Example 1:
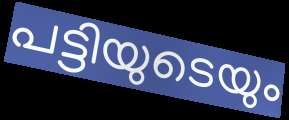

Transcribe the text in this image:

പട്ടിയുടെയും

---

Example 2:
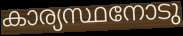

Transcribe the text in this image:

കാര്യസ്ഥനോടു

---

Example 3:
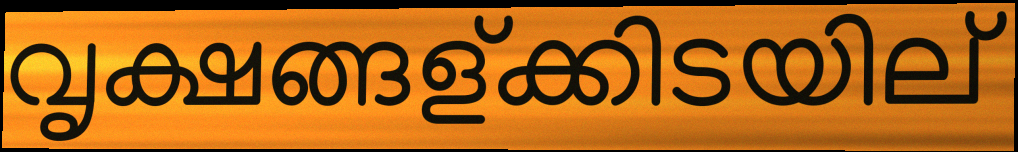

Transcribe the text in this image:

വൃക്ഷങ്ങള്ക്കിടയില്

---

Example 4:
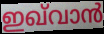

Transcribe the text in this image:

ഇഖ്‌വാൻ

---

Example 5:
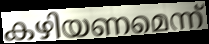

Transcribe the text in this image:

കഴിയണമെന്ന്